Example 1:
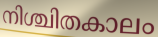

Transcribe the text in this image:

നിശ്ചിതകാലം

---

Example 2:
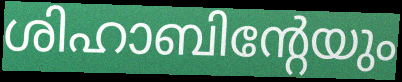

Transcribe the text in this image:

ശിഹാബിന്റേയും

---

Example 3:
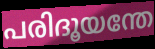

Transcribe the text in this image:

പരിദൂയന്തേ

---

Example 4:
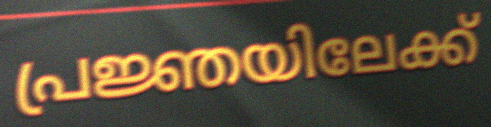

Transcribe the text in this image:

പ്രജ്ഞയിലേക്ക്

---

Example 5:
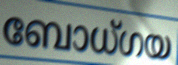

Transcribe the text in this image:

ബോധ്ഗയ